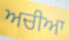
ਅਚੀਆ